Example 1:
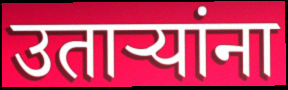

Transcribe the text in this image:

उताऱ्यांना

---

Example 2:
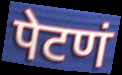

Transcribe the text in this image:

पेटणं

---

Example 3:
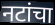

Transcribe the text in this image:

नटांचा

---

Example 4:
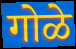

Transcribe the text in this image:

गोळे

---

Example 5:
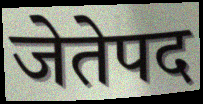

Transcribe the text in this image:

जेतेपद